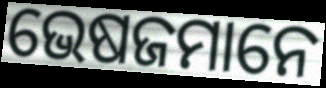
ଭେଷଜମାନେ